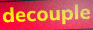
decouple